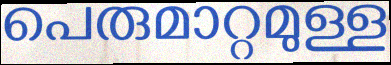
പെരുമാറ്റമുള്ള